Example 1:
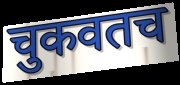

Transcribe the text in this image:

चुकवतच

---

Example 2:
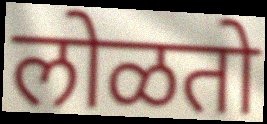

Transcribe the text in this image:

लोळतो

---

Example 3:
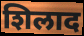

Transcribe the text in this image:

शिलाद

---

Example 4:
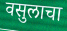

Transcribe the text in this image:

वसुलाचा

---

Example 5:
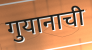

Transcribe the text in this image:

गुयानाची